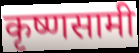
कृष्णसामी